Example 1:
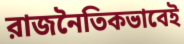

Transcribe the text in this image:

রাজনৈতিকভাবেই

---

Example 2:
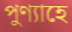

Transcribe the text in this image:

পুণ্যাহে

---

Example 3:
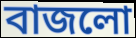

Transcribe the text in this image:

বাজলো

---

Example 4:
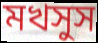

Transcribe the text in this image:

মখসুস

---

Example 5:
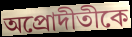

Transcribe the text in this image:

অপ্রোদীতীকে